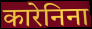
कारेनिना